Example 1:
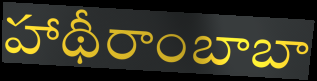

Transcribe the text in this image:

హాథీరాంబాబా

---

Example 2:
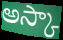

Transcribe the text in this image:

అస్కా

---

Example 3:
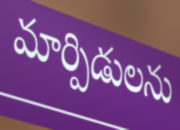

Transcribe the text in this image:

మార్పిడులను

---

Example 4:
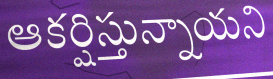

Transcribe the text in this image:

ఆకర్షిస్తున్నాయని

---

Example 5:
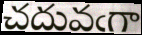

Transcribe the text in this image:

చదువఁగా